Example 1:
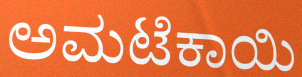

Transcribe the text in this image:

ಅಮಟೆಕಾಯಿ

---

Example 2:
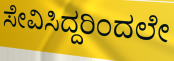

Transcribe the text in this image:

ಸೇವಿಸಿದ್ದರಿಂದಲೇ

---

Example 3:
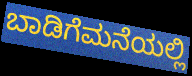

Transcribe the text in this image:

ಬಾಡಿಗೆಮನೆಯಲ್ಲಿ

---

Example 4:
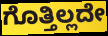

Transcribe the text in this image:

ಗೊತ್ತಿಲ್ಲದೇ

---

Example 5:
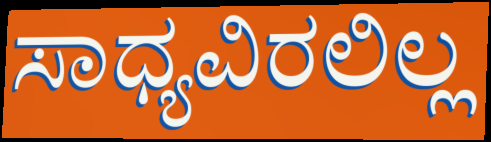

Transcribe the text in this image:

ಸಾಧ್ಯವಿರಲಿಲ್ಲ